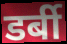
डर्बी